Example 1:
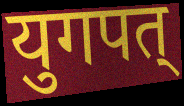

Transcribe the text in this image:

युगपत्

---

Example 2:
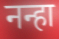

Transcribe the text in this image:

नन्हा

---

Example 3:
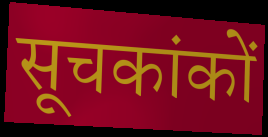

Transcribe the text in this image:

सूचकांकों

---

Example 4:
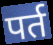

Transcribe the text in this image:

पर्त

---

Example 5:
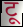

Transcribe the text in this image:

टू